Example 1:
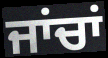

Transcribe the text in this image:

ਜਾਂਚਾਂ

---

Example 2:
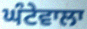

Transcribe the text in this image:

ਘੰਟੇਵਾਲਾ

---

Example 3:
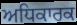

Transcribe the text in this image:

ਅਧਿਕਾਰਕ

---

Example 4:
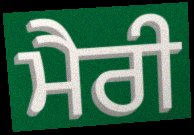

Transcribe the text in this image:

ਮੈਰੀ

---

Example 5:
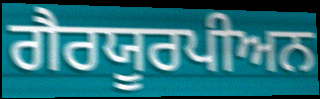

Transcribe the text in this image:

ਗੈਰਯੂਰਪੀਅਨ